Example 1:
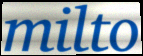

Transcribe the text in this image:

milto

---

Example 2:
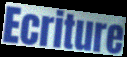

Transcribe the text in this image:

Ecriture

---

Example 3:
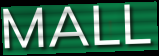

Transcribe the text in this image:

MALL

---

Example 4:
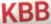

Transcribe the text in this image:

KBB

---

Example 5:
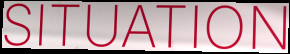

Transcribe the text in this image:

SITUATION